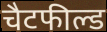
चैटफील्ड